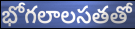
భోగలాలసతతో